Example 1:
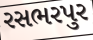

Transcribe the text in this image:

રસભરપુર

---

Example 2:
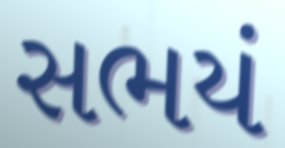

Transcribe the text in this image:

સભયં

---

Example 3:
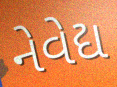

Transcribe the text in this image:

નેવેદ્ય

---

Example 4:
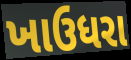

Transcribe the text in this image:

ખાઉધરા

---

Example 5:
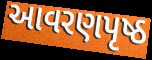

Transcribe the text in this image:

આવરણપૃષ્ઠ